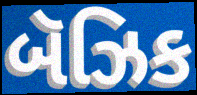
બૅઝિક